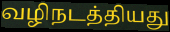
வழிநடத்தியது